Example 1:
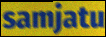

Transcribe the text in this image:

samjatu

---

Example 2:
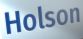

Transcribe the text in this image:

Holson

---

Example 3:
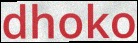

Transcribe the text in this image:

dhoko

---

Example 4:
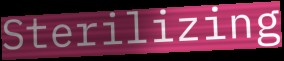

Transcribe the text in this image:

Sterilizing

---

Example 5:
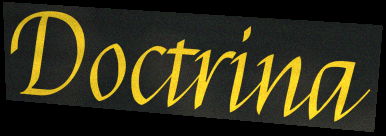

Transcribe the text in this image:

Doctrina